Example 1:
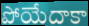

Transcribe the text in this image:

పోయేదాకా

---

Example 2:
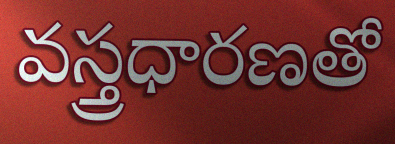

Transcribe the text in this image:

వస్త్రధారణతో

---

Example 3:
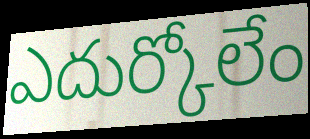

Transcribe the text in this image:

ఎదుర్కోలేం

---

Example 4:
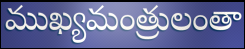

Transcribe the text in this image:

ముఖ్యమంత్రులంతా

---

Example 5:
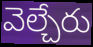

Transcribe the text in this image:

వెల్చేరు